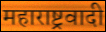
महाराष्ट्रवादी